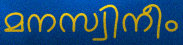
മനസ്വിനീം